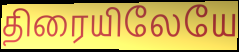
திரையிலேயே